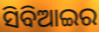
ସିବିଆଇର